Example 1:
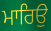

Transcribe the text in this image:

ਮਾਰਿਉ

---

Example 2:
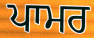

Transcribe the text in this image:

ਪਾਮਰ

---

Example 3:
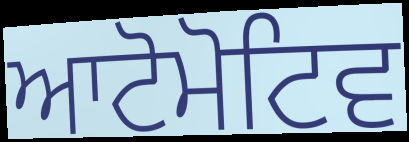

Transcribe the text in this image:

ਆਟੋਮੋਟਿਵ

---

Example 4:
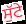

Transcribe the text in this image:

ਸੁੱਟੇ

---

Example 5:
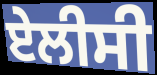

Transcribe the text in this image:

ਏਲੀਸੀ